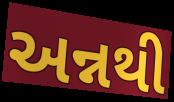
અન્નથી